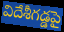
విదేశీగడ్డపై